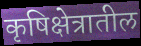
कृषिक्षेत्रातील